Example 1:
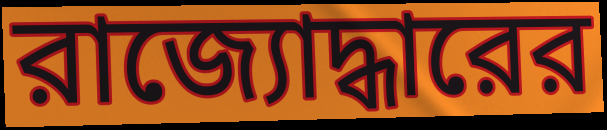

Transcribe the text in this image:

রাজ্যোদ্ধারের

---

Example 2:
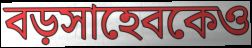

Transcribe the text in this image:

বড়সাহেবকেও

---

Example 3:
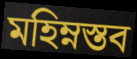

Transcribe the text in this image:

মহিম্নস্তব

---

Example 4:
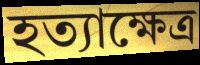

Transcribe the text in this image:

হত্যাক্ষেত্র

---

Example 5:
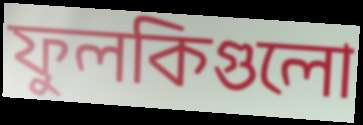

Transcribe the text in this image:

ফুলকিগুলো